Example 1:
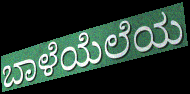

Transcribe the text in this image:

ಬಾಳೆಯೆಲೆಯ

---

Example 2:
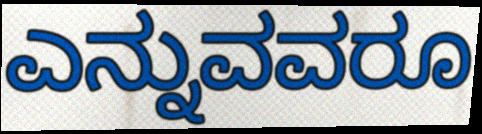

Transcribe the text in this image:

ಎನ್ನುವವರೂ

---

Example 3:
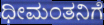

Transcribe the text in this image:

ಧೀಮಂತನಿಗೆ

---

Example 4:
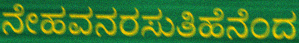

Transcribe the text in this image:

ನೇಹವನರಸುತಿಹೆನೆಂದ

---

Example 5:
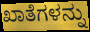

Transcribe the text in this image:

ಖಾತೆಗಳನ್ನು